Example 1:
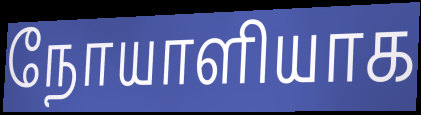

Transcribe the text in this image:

நோயாளியாக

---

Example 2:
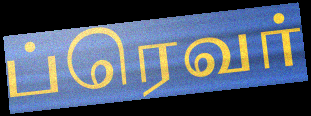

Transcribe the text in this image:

ப்ரெவர்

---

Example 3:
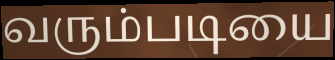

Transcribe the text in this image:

வரும்படியை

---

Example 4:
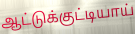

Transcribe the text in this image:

ஆட்டுக்குட்டியாய்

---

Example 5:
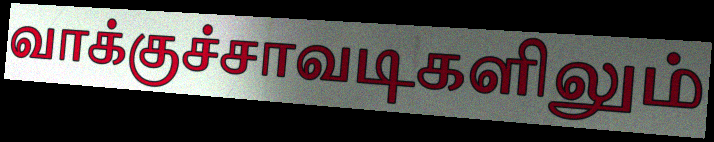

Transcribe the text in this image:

வாக்குச்சாவடிகளிலும்